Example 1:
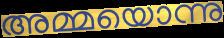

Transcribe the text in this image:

അമ്മയൊന്നു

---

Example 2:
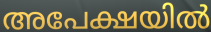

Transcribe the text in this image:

അപേക്ഷയിൽ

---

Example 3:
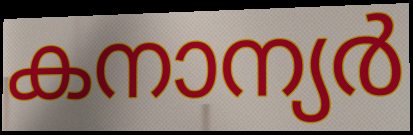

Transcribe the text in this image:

കനാന്യർ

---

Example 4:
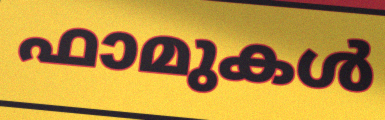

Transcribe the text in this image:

ഫാമുകൾ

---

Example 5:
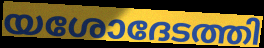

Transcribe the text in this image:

യശോദേടത്തി